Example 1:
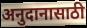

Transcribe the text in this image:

अनुदानासाठी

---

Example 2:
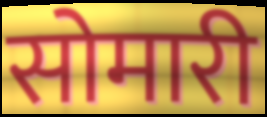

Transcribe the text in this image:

सोमारी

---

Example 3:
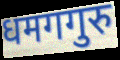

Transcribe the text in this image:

धमगगुरु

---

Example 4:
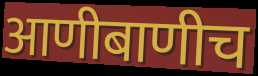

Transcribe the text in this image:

आणीबाणीच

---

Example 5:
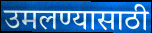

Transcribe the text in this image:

उमलण्यासाठी